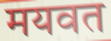
मयवत